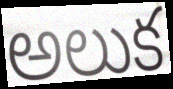
అలుక